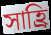
সাহ্রি